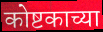
कोष्टकाच्या